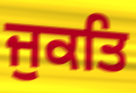
ਜੁਕਤਿ